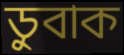
ডুবাক